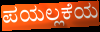
ಪಯಲ್ಲಕೆಯ